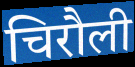
चिरौली